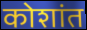
कोशांत